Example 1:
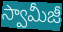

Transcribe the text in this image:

స్వామీజీ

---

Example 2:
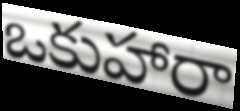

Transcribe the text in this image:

ఒకుహారా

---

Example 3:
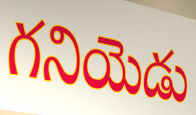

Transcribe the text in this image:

గనియెడు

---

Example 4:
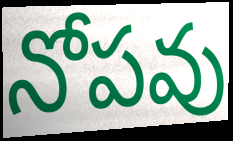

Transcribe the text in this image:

నోపవు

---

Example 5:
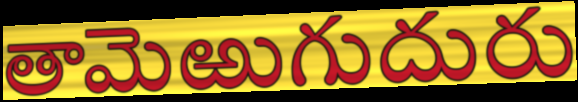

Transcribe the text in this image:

తామెఱుగుదురు